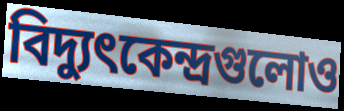
বিদ্যুৎকেন্দ্রগুলোও